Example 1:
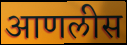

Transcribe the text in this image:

आणलीस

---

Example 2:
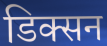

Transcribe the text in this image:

डिक्सन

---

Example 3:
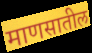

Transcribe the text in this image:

माणसातील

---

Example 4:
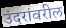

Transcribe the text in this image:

उंदरांवरील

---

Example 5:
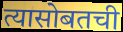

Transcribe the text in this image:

त्यासोबतची